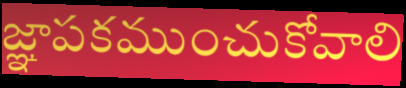
జ్ఞాపకముంచుకోవాలి